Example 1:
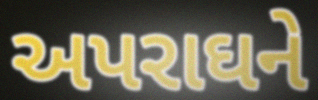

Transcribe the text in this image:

અપરાઘને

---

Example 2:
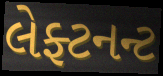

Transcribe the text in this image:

લેફ્ટનન્ટ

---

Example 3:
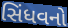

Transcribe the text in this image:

સિંધવનો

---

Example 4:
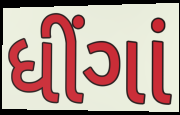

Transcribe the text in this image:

ધીંગાં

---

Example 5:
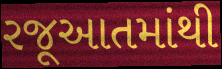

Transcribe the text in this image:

રજૂઆતમાંથી